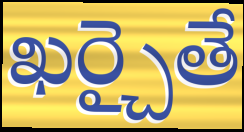
ఖర్చైతే